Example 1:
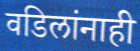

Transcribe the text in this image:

वडिलांनाही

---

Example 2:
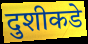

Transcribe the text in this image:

दुशीकडे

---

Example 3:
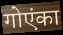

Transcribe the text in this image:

गोएंका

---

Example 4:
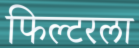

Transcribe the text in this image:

फिल्टरला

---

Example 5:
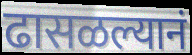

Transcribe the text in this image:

ढासळल्यानं